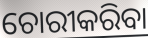
ଚୋରୀକରିବା